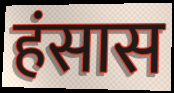
हंसास